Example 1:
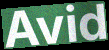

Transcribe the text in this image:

Avid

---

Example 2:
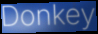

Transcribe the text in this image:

Donkey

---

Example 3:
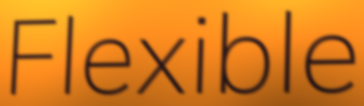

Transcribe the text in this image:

Flexible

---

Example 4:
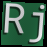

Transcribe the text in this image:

Rj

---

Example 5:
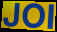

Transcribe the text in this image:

JOI